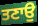
ਤਣਾਉ